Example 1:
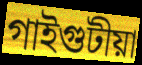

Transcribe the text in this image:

গাইগুটীয়া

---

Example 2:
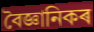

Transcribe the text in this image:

বৈজ্ঞানিকৰ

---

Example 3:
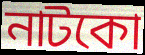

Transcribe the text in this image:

নাটকো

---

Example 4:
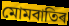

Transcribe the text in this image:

মোমবাতিৰ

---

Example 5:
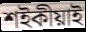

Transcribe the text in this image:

শইকীয়াই